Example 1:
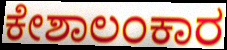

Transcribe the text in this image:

ಕೇಶಾಲಂಕಾರ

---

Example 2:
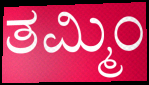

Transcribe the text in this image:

ತಮ್ಮಿಂ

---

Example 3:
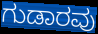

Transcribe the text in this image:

ಗುಡಾರವು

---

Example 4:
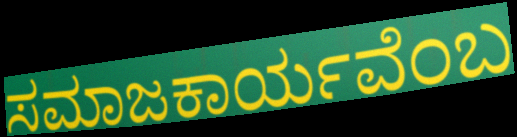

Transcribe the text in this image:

ಸಮಾಜಕಾರ್ಯವೆಂಬ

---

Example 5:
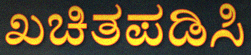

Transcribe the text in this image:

ಖಚಿತಪಡಿಸಿ